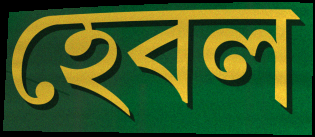
হেবল